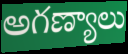
అగణ్యాలు